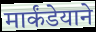
मार्कंडेयाने